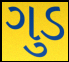
ગુડ